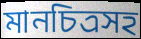
মানচিত্রসহ